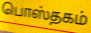
பொஸ்தகம்